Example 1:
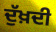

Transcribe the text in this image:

ਦੁੱਖ਼ਦੀ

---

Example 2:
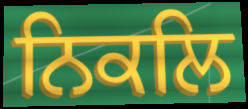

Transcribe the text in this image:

ਨਿਕਲਿ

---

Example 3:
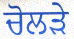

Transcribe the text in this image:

ਚੋਲੜੇ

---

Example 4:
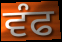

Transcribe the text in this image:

ਵੰਫ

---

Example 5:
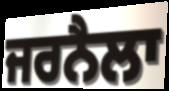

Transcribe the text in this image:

ਜਰਨੈਲਾ